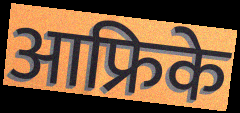
आफ्रिके